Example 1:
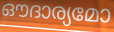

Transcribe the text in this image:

ഔദാര്യമോ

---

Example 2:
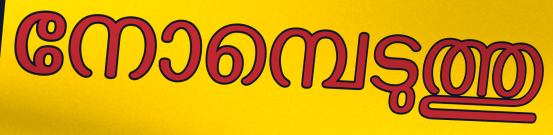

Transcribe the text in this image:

നോമ്പെടുത്തു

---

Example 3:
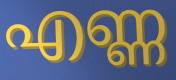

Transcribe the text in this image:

എണ്ണ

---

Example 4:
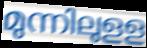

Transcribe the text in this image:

മുന്നിലുളള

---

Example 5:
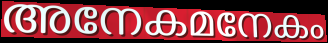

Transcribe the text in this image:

അനേകമനേകം